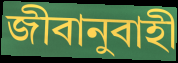
জীবানুবাহী